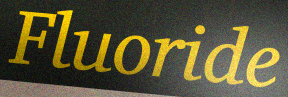
Fluoride